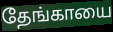
தேங்காயை